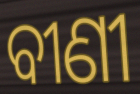
ବୀଣୀ